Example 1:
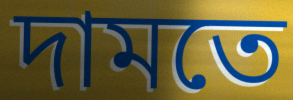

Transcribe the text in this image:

দামতে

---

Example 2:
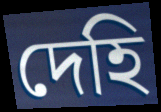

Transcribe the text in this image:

দেহি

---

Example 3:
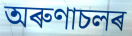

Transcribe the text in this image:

অৰুণাচলৰ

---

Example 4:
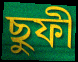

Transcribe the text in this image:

ছুফী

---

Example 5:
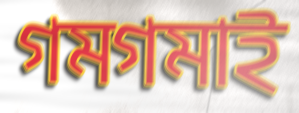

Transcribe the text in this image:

গমগমাই